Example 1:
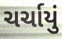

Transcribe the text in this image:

ચર્ચાયું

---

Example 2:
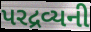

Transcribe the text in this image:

પરદ્રવ્યની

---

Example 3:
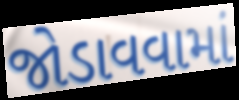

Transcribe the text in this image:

જોડાવવામાં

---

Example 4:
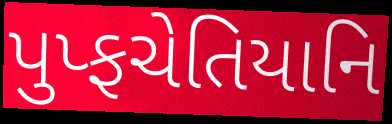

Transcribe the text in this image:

પુપ્ફચેતિયાનિ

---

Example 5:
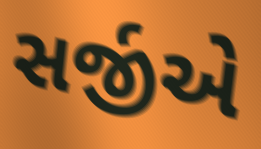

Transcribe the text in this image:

સર્જીએ